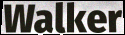
Walker